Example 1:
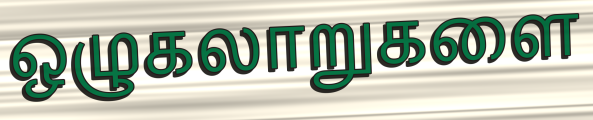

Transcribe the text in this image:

ஒழுகலாறுகளை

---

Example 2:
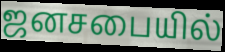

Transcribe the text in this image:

ஜனசபையில்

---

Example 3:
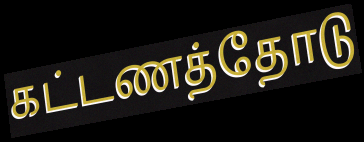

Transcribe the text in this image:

கட்டணத்தோடு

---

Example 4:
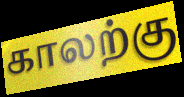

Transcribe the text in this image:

காலற்கு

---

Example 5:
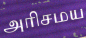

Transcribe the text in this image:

அரிசமய